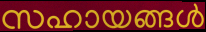
സഹായങ്ങൾ